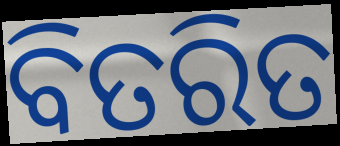
ବିତରିତ